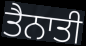
ਤੈਨਾਤੀ